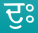
ਦੁਃ